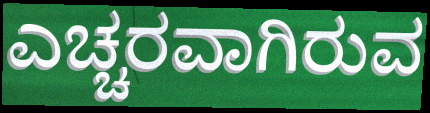
ಎಚ್ಚರವಾಗಿರುವ